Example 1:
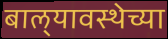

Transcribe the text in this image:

बाल्यावस्थेच्या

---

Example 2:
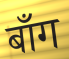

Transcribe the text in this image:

बाँग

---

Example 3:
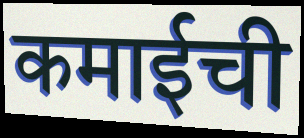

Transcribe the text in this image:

कमाईची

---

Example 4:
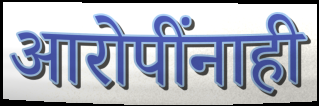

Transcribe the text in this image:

आरोपींनाही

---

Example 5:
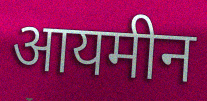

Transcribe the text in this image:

आयमीन